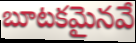
బూటకమైనవే